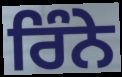
ਰਿੰਨੇ